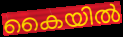
കൈയിൽ